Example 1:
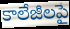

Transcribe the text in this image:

కాలేజీలపై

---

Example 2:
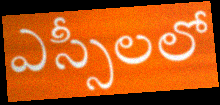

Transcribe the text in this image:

ఎస్సీలలో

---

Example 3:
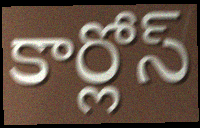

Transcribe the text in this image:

కార్లోస్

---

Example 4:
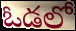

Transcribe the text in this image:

ఓడలో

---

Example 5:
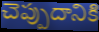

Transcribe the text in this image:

చెప్పుదానికి